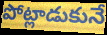
పోట్లాడుకునే